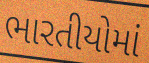
ભારતીયોમાં